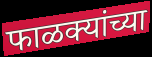
फाळक्यांच्या